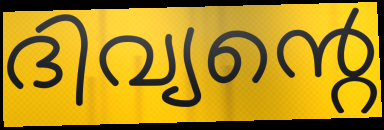
ദിവ്യന്റെ